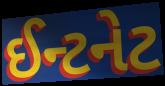
ઈન્ટનેટ